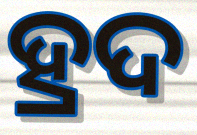
ହ୍ରଦ